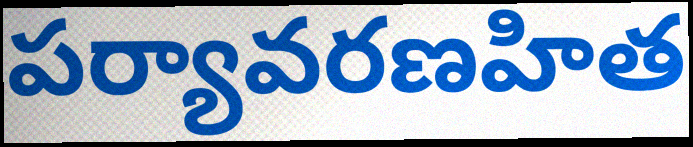
పర్యావరణహిత